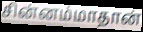
சின்னம்மாதான்